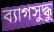
ব্যাগসুদ্ধু